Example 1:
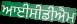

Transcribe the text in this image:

ਆਈਸੀਡੀਐਮ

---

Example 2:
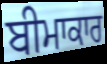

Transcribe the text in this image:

ਬੀਮਾਕਾਰ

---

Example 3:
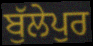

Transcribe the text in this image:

ਬੁੱਲੇਪੁਰ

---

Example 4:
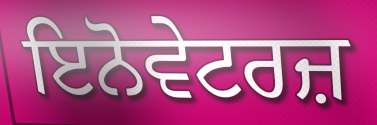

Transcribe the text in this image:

ਇਨੋਵੇਟਰਜ਼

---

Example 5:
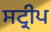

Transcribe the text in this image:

ਸਟ੍ਰੀਪ